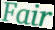
Fair